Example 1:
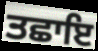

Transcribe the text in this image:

ਤਛਾਇ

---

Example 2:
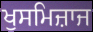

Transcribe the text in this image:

ਖੁਸਮਿਜ਼ਾਜ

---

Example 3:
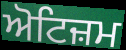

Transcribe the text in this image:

ਅੋਟਿਜ਼ਮ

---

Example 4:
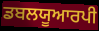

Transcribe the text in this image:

ਡਬਲਯੂਆਰਪੀ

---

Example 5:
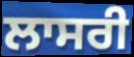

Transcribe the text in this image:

ਲਾਸਰੀ